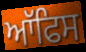
ਆੱਫਿਸ